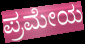
ಪ್ರಮೇಯ